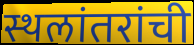
स्थलांतरांची